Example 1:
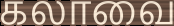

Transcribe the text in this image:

கலாவை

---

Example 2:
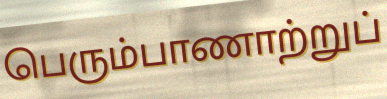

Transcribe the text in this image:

பெரும்பாணாற்றுப்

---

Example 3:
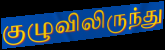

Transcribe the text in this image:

குழுவிலிருந்து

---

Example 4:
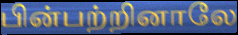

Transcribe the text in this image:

பின்பற்றினாலே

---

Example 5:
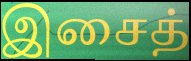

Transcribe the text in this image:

இசைத்